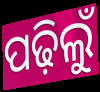
ପଢ଼ିଲୁଁ